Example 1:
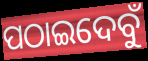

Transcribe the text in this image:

ପଠାଇଦେବୁଁ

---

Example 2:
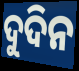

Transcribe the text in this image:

ଦୁଦିନ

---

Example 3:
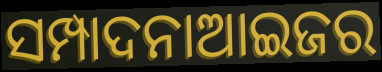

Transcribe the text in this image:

ସମ୍ପାଦନାଆଇଜର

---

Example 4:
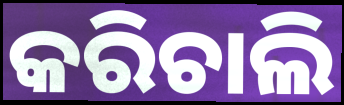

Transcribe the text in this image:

କରିଚାଲି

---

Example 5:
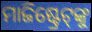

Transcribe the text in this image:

ମାଜିଷ୍ଟ୍ରେଟ୍‌ଙ୍କୁ